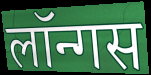
लॉन्गस